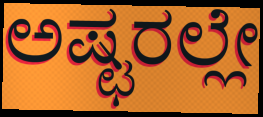
ಅಷ್ಟರಲ್ಲೇ